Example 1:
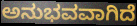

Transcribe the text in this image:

ಅನುಭವವಾಗಿದೆ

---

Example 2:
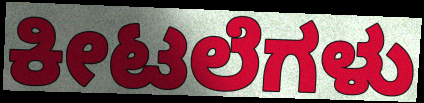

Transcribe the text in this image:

ಕೀಟಲೆಗಳು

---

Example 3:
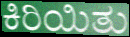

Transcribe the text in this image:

ಕಿರಿಯಿತು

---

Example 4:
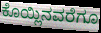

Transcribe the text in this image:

ಕೊಯ್ಲಿನವರೆಗೂ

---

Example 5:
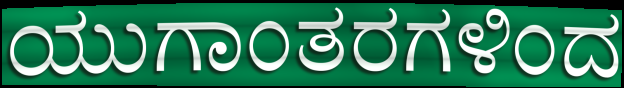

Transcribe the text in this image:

ಯುಗಾಂತರಗಳಿಂದ